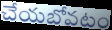
చేయబోవటం